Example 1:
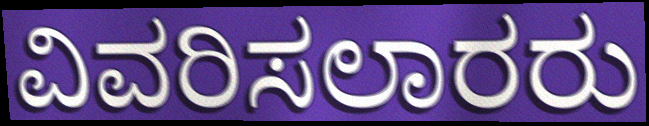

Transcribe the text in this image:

ವಿವರಿಸಲಾರರು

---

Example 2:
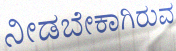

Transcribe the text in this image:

ನೀಡಬೇಕಾಗಿರುವ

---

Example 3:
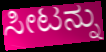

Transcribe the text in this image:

ಸೀಟನ್ನು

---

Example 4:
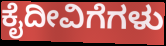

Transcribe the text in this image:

ಕೈದೀವಿಗೆಗಳು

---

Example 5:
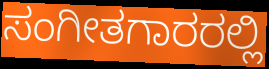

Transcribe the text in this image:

ಸಂಗೀತಗಾರರಲ್ಲಿ